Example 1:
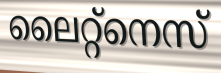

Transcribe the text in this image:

ലൈറ്റ്നെസ്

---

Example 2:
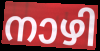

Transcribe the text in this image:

നാഴി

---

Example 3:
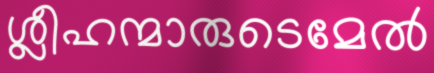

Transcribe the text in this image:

ശ്ലീഹന്മാരുടെമേൽ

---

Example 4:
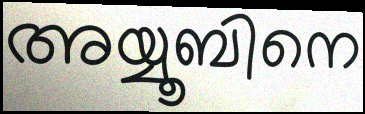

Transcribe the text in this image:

അയ്യൂബിനെ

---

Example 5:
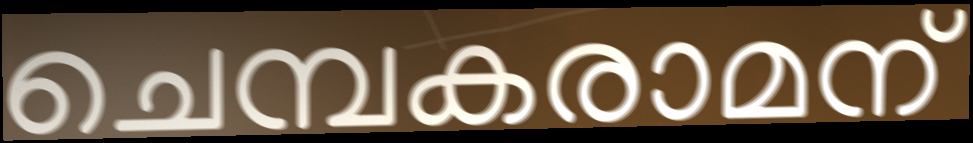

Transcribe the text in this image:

ചെമ്പകരാമന്